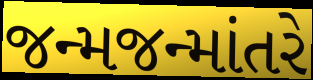
જન્મજન્માંતરે